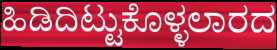
ಹಿಡಿದಿಟ್ಟುಕೊಳ್ಳಲಾರದ